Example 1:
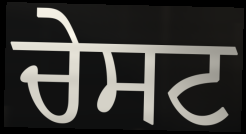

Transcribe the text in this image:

ਚੇਸਟ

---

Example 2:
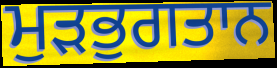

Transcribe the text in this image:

ਮੁੜਭੁਗਤਾਨ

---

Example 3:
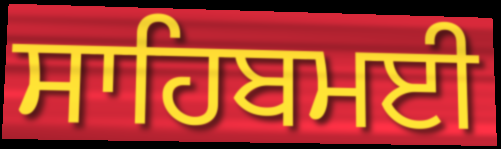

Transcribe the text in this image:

ਸਾਹਿਬਮਈ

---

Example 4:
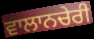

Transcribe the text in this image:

ਵਾਲਾਨਚੇਰੀ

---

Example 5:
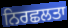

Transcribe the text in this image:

ਨਿਰਛਲਤਾ